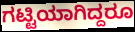
ಗಟ್ಟಿಯಾಗಿದ್ದರೂ